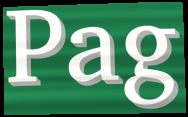
Pag